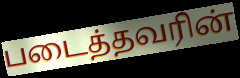
படைத்தவரின்